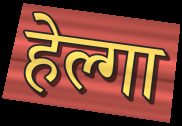
हेल्गा